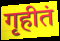
गृहीतं